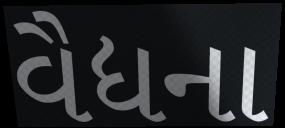
વૈદ્યના